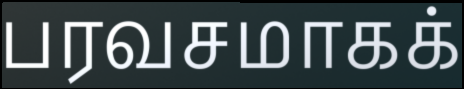
பரவசமாகக்